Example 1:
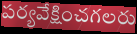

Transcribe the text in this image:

పర్యవేక్షించగలరు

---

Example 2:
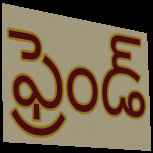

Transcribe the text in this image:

ఫ్రెండ్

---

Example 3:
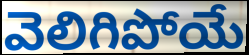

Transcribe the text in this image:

వెలిగిపోయే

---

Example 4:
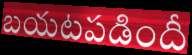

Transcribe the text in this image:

బయటపడిందీ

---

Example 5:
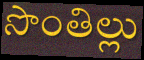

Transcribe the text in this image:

సొంతిల్లు